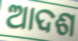
ଆଦଶ